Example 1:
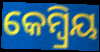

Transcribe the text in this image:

କେମ୍ବ୍ରିୟ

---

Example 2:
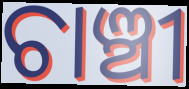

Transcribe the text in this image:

ଚାଞ୍ଚୀ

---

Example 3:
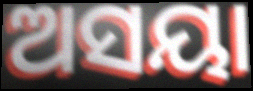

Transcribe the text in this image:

ଅସୟା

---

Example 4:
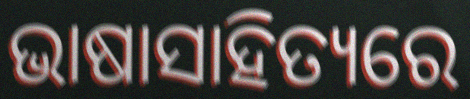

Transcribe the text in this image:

ଭାଷାସାହିତ୍ୟରେ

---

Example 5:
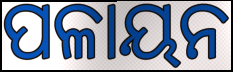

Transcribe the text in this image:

ପଳାୟନ